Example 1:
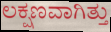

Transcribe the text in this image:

ಲಕ್ಷಣವಾಗಿತ್ತು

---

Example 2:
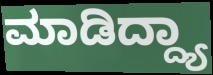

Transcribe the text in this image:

ಮಾಡಿದ್ದ್ಯಾ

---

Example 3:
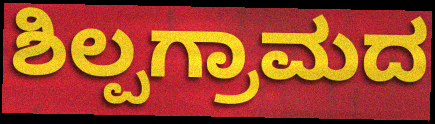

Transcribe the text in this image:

ಶಿಲ್ಪಗ್ರಾಮದ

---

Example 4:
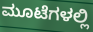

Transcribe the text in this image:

ಮೂಟೆಗಳಲ್ಲಿ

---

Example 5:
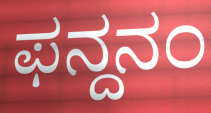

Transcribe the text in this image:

ಫನ್ದನಂ